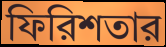
ফিরিশতার